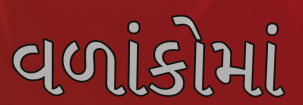
વળાંકોમાં